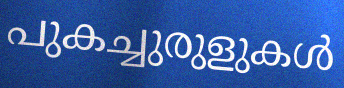
പുകച്ചുരുളുകൾ